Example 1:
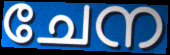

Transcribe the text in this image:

ചേന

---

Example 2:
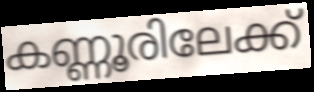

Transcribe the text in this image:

കണ്ണൂരിലേക്ക്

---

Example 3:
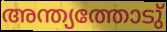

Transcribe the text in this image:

അന്ത്യത്തോടു്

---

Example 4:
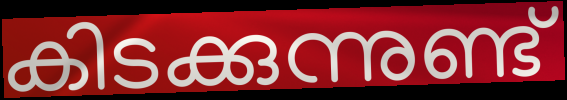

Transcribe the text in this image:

കിടക്കുന്നുണ്ട്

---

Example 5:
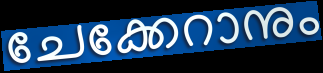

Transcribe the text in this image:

ചേക്കേറാനും